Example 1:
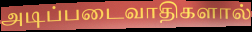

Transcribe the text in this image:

அடிப்படைவாதிகளால்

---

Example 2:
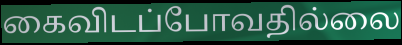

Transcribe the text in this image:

கைவிடப்போவதில்லை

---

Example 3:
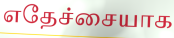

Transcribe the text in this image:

எதேச்சையாக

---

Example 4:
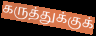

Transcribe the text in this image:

கருத்துக்குக்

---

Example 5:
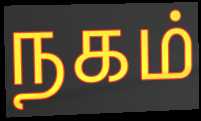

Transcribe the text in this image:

நகம்